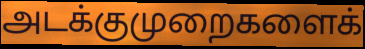
அடக்குமுறைகளைக்